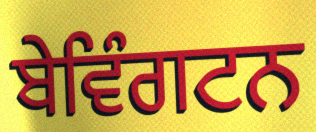
ਬੇਵਿੰਗਟਨ